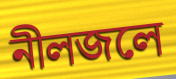
নীলজলে